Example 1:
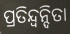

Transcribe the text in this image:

ପ୍ରତିନ୍ଦ୍ବନ୍ଦିତା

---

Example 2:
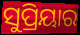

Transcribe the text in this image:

ସୁପ୍ରିୟାର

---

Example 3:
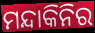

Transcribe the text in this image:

ମନ୍ଦାକିନିର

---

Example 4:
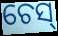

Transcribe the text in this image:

ଚେସ୍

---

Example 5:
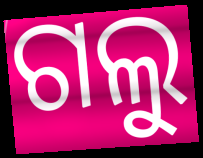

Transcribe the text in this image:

ଗଲୁ